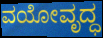
ವಯೋವೃದ್ಧ